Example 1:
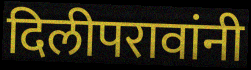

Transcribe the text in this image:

दिलीपरावांनी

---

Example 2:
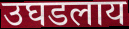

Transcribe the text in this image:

उघडलाय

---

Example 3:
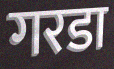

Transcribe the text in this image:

गरडा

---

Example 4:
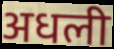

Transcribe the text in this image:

अधली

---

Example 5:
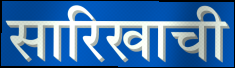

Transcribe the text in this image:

सारिखाची